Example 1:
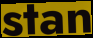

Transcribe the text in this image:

stan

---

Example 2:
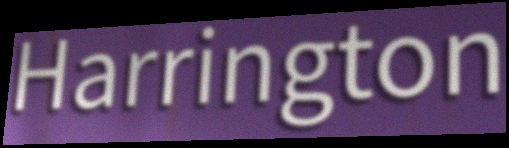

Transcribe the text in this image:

Harrington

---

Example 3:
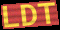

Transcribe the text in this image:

LDT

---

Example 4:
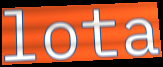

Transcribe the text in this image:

lota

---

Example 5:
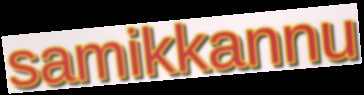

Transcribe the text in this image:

samikkannu